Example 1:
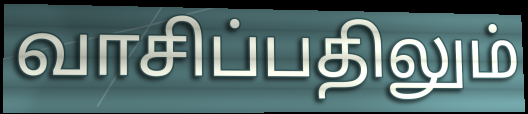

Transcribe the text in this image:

வாசிப்பதிலும்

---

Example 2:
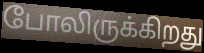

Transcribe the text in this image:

போலிருக்கிறது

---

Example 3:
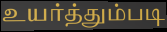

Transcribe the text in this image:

உயர்த்தும்படி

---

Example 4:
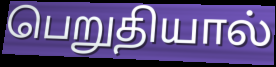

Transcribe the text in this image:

பெறுதியால்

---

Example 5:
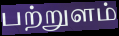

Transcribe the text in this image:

பற்றுளம்